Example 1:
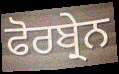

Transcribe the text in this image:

ਫੋਰਬ੍ਰੇਨ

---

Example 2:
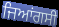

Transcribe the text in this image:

ਜਿਆਂਗਸੀ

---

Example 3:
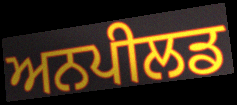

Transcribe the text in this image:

ਅਨਪੀਲਡ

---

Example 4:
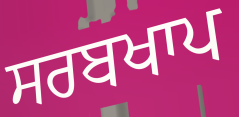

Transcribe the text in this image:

ਸਰਬਖਾਪ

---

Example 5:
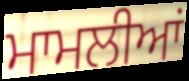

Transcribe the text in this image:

ਮਾਮਲੀਆਂ